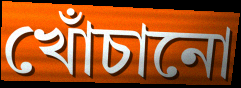
খোঁচানো